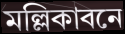
মল্লিকাবনে